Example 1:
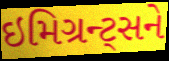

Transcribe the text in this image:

ઇમિગ્રન્ટ્સને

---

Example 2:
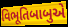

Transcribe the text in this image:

વિભૂતિબાબુએ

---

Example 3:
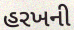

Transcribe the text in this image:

હરખની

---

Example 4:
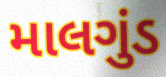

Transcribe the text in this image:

માલગુંડ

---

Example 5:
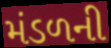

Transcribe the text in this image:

મંડળની